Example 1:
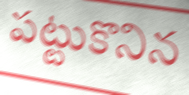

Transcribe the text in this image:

పట్టుకొనిన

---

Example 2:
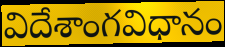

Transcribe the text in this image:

విదేశాంగవిధానం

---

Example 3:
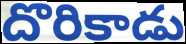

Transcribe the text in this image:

దొరికాడు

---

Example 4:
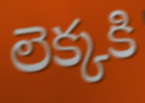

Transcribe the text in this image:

లెక్కకి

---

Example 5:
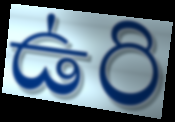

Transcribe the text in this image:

ఉరి